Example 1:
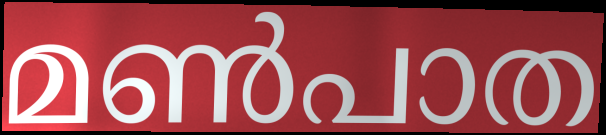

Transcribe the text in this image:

മൺപാത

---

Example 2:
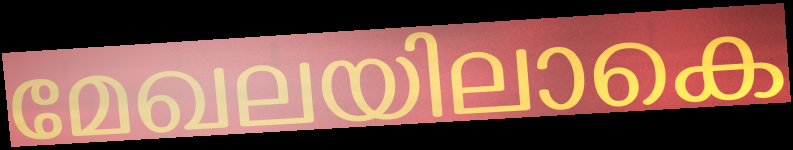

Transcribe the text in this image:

മേഖലയിലാകെ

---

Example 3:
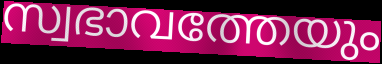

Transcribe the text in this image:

സ്വഭാവത്തേയും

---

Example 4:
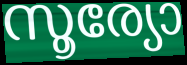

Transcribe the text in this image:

സൂര്യോ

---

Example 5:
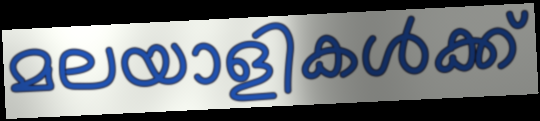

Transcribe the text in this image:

മലയാളികൾക്ക്